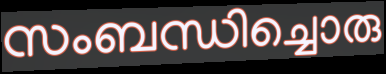
സംബന്ധിച്ചൊരു